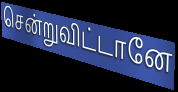
சென்றுவிட்டானே